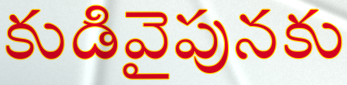
కుడివైపునకు